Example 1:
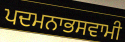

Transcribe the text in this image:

ਪਦਮਨਾਭਸਵਾਮੀ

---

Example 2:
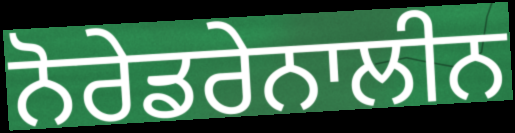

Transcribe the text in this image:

ਨੋਰੇਡਰੇਨਾਲੀਨ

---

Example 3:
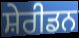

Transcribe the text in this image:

ਸ਼ੇਰੀਡਨ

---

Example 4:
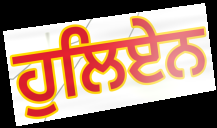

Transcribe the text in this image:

ਹੁਲਿਏਨ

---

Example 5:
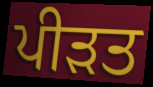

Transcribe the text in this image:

ਪੀਡ਼ਤ